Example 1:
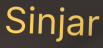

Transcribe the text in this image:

Sinjar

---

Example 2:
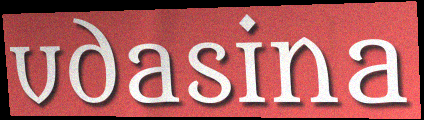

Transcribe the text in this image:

udasina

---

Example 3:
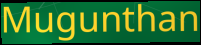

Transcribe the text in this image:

Mugunthan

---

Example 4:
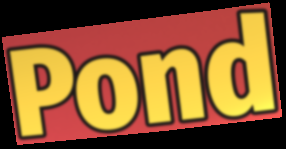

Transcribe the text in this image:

Pond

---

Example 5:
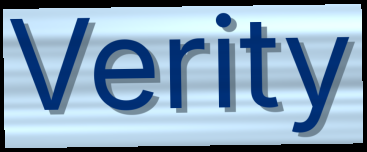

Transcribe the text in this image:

Verity